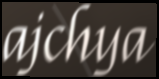
ajchya